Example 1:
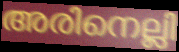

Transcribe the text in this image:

അരിനെല്ലി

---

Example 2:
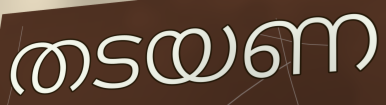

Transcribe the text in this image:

തടയണ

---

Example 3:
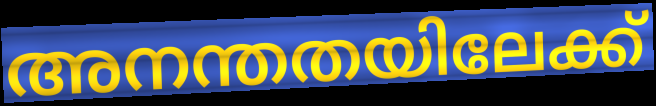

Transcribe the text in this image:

അനന്തതയിലേക്ക്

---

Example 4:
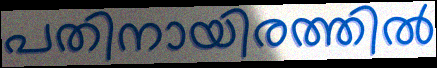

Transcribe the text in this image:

പതിനായിരത്തിൽ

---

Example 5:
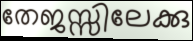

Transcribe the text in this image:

തേജസ്സിലേക്കു